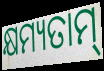
କ୍ଷମ୍ୟତାମ୍